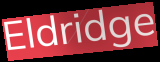
Eldridge